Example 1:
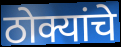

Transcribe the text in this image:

ठोक्यांचे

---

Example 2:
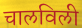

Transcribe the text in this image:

चालविली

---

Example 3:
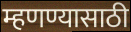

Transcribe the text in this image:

म्हणण्यासाठी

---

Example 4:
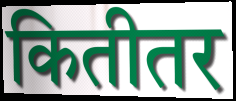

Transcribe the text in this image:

कितीतर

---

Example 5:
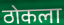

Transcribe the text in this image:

ठोकला